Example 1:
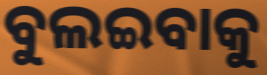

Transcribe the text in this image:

ବୁଲଇବାକୁ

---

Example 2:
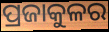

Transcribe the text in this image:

ପ୍ରଜାକୁଳର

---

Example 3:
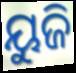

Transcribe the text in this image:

ୟୁଜି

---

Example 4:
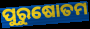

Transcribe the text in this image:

ପୁରୁଷୋତମ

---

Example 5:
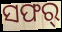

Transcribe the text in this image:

ସଫର୍